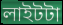
লাইটটা